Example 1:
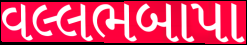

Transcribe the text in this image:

વલ્લભબાપા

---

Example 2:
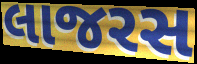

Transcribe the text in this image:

લાજરસ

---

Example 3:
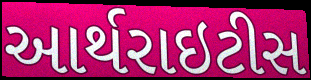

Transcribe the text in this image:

આર્થરાઇટીસ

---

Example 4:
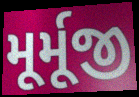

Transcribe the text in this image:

મૂર્મૂજી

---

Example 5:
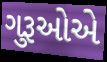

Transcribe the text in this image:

ગુરૂઓએ